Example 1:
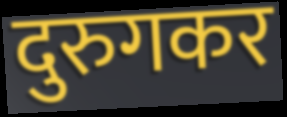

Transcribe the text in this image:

दुरुगकर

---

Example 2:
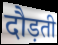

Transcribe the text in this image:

दौड़ती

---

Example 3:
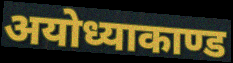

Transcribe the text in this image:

अयोध्याकाण्ड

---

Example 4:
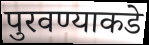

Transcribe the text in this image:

पुरवण्याकडे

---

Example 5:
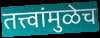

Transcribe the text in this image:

तत्त्वांमुळेच